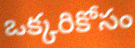
ఒక్కరికోసం